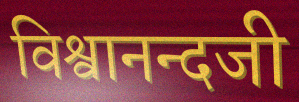
विश्वानन्दजी